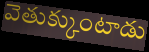
వెతుక్కుంటాడు